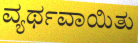
ವ್ಯರ್ಥವಾಯಿತು